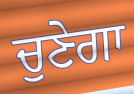
ਚੁਣੇਗਾ